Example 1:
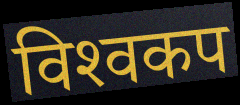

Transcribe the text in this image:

विश्‍वकप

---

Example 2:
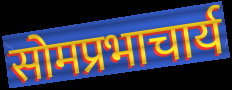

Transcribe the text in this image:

सोमप्रभाचार्य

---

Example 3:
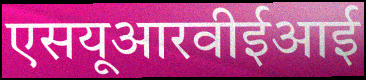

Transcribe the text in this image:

एसयूआरवीईआई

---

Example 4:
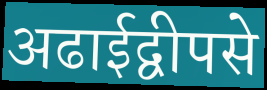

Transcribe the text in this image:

अढाईद्वीपसे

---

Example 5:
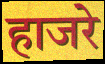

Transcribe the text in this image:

हाजरे